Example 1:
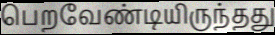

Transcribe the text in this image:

பெறவேண்டியிருந்தது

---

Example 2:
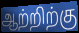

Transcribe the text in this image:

ஆற்றிற்கு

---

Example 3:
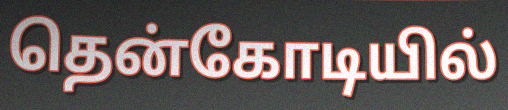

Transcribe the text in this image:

தென்கோடியில்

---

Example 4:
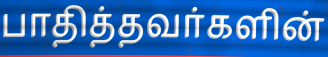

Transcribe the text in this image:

பாதித்தவர்களின்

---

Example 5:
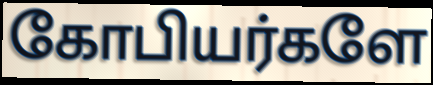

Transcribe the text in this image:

கோபியர்களே